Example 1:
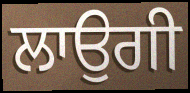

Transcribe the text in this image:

ਲਾਉਗੀ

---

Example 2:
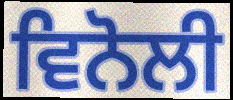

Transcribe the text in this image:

ਵਿਨੋਲੀ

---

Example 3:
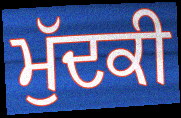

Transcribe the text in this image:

ਮੁੱਦਕੀ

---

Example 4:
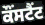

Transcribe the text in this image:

ਕੌਂਸਟੈਂਟ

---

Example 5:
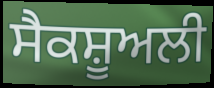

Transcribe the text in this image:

ਸੈਕਸ਼ੂਅਲੀ